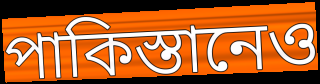
পাকিস্তানেও